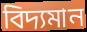
বিদ্যমান